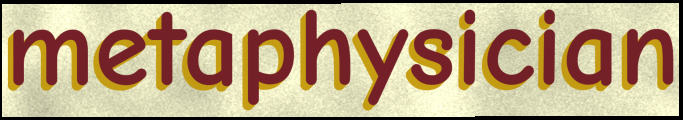
metaphysician